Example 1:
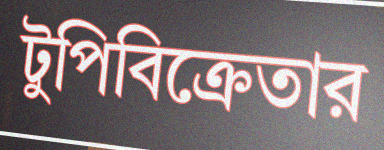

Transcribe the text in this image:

টুপিবিক্রেতার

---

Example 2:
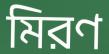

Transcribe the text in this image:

মিরণ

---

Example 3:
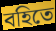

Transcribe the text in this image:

বহিতে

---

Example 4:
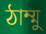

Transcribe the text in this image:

ঠাম্মু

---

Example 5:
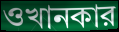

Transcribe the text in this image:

ওখানকার